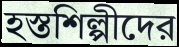
হস্তশিল্পীদের